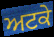
ਅਟਕੇ